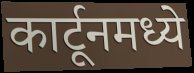
कार्टूनमध्ये